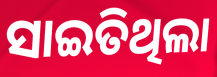
ସାଇତିଥିଲା